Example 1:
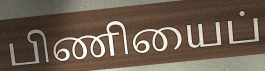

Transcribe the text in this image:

பிணியைப்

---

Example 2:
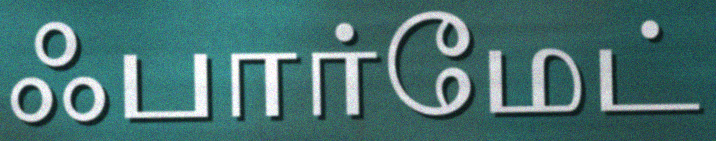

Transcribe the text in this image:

ஃபார்மேட்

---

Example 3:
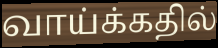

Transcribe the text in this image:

வாய்க்கதில்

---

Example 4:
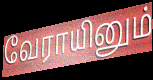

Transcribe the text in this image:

வேராயினும்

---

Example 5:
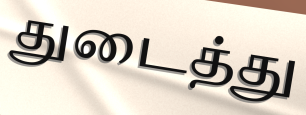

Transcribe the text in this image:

துடைத்து